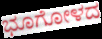
ಭೂಗೋಳದ